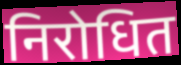
निरोधित